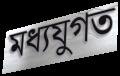
মধ্যযুগত